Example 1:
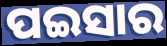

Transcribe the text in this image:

ପଇସାର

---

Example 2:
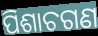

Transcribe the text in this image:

ପିଶାଚଗଣ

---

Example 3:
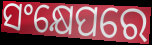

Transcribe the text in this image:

ସଂକ୍ଷେପରେ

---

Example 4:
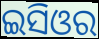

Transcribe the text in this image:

ଇସିଓର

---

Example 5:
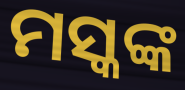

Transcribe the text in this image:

ମସ୍କଙ୍କ